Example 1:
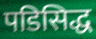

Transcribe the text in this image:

पडिसिद्ध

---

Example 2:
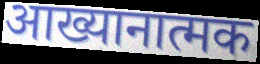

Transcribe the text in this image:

आख्यानात्मक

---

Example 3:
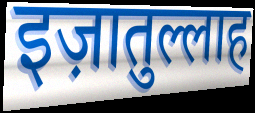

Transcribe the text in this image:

इज़ातुल्लाह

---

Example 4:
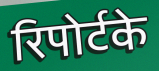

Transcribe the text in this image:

रिपोर्टके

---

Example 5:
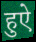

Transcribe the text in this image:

हुऐ